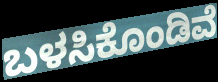
ಬಳಸಿಕೊಂಡಿವೆ